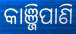
କାଞ୍ଜିପାଣି